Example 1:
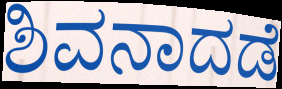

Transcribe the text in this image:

ಶಿವನಾದಡೆ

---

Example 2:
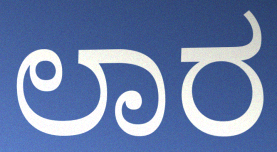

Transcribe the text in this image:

ಲಾರ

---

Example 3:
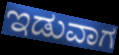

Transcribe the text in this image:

ಇಡುವಾಗ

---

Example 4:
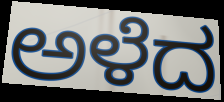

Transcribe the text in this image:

ಅಳೆದ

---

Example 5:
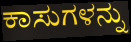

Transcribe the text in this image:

ಕಾಸುಗಳನ್ನು